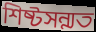
শিষ্টসন্মত